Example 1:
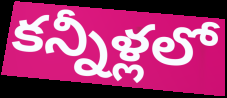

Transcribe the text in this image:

కన్నీళ్లలో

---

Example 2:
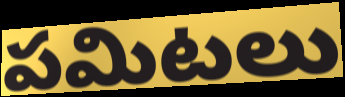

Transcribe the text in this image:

పమిటలు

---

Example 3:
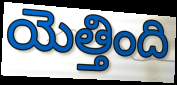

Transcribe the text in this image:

యెత్తింది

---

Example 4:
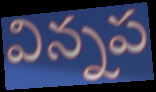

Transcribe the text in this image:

విన్నప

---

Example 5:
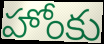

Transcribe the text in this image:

హోంకు